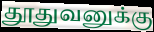
தூதுவனுக்கு